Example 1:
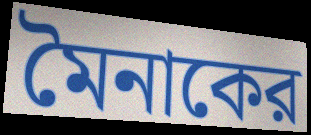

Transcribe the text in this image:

মৈনাকের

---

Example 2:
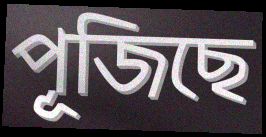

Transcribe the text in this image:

পূজিছে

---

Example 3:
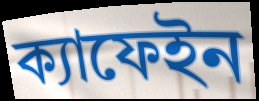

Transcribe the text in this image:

ক্যাফেইন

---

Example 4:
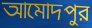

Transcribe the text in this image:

আমোদপুর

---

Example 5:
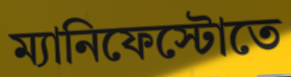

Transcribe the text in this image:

ম্যানিফেস্টোতে